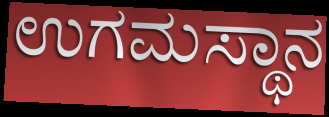
ಉಗಮಸ್ಥಾನ